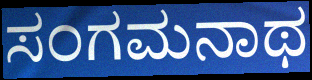
ಸಂಗಮನಾಥ